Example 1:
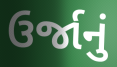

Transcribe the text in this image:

ઉર્જાનું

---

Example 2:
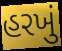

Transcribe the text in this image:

હરખું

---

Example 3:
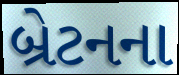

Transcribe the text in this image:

બ્રેટનના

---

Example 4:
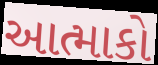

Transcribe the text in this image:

આત્માકો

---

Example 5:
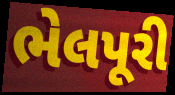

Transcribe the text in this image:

ભેલપૂરી